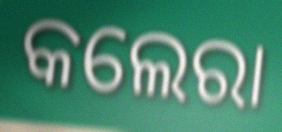
କଲେରା